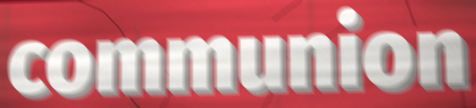
communion